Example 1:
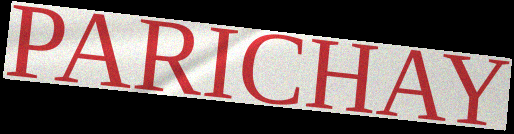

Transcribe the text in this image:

PARICHAY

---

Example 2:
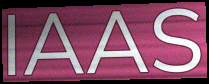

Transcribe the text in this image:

IAAS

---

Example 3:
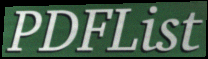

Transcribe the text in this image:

PDFList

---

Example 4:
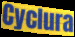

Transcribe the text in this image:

Cyclura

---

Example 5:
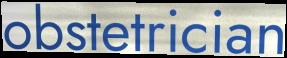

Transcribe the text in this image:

obstetrician